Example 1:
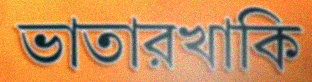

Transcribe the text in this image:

ভাতারখাকি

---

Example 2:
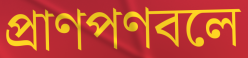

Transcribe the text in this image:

প্রাণপণবলে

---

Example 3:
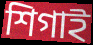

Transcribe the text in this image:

শিগাই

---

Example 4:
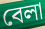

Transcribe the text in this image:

বেলা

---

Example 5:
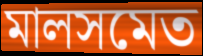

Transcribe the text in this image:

মালসমেত